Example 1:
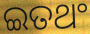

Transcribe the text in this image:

ଇତଥଂ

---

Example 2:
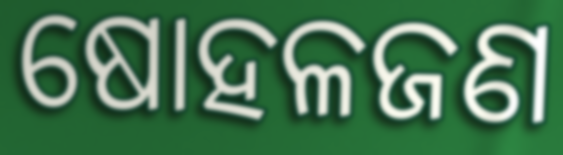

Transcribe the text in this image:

ଷୋହଳଜଣ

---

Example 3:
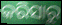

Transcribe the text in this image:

କରିସାରୁ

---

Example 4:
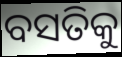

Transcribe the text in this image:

ବସତିକୁ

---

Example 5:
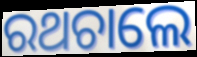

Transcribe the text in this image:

ରଥଚାଲେ